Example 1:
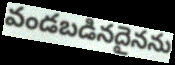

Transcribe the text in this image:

వండబడినదైనను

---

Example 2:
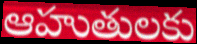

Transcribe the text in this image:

ఆహుతులకు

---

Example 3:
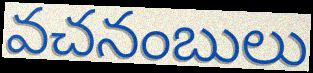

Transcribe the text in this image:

వచనంబులు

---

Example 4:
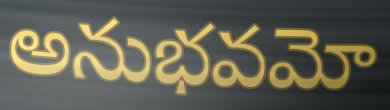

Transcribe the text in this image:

అనుభవమో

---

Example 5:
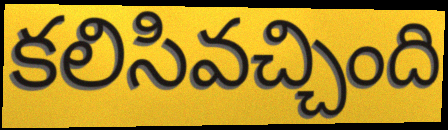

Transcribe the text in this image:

కలిసివచ్చింది